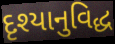
દૃશ્યાનુવિદ્ધ